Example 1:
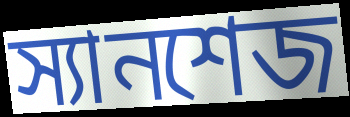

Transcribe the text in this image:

স্যানশেজ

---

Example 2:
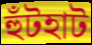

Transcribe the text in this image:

হুঁটহাট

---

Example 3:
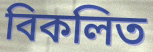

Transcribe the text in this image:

বিকলিত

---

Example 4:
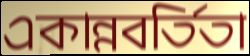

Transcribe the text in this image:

একান্নবর্তিতা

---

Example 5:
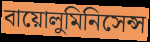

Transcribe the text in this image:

বায়োলুমিনিসেন্স